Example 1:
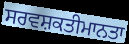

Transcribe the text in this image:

ਸਰਵਸ਼ਕਤੀਮਾਨਤਾ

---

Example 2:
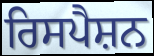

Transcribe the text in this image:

ਰਿਸਪੈਸ਼ਨ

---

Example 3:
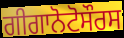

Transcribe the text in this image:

ਗੀਗਾਨੋਟੋਸੌਰਸ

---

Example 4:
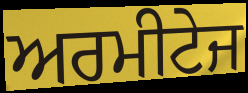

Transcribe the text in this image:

ਅਰਮੀਟੇਜ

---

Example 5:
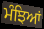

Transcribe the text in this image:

ਮੰਝਿਆਂ